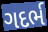
ગદર્ભ